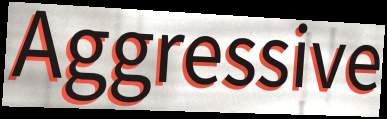
Aggressive